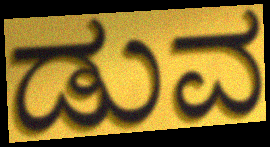
ಡುವ